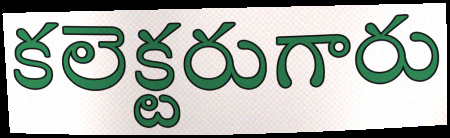
కలెక్టరుగారు